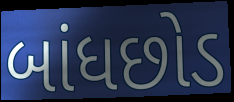
બાંધછોડ